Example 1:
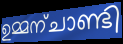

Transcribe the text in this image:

ഉമ്മന്ചാണ്ടി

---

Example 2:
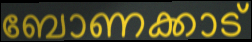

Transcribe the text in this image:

ബോണക്കാട്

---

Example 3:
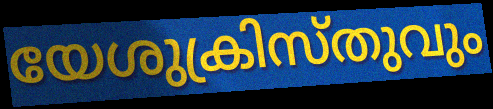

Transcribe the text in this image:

യേശുക്രിസ്തുവും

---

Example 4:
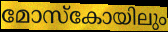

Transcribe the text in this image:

മോസ്കോയിലും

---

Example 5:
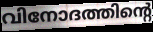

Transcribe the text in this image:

വിനോദത്തിന്റെ